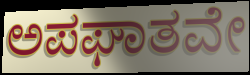
ಅಪಘಾತವೇ